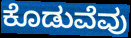
ಕೊಡುವೆವು